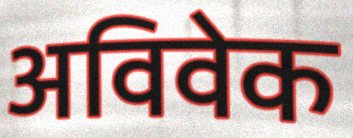
अविवेक